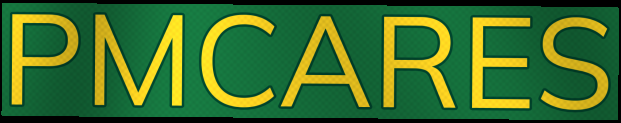
PMCARES